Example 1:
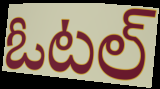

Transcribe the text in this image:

ఓటల్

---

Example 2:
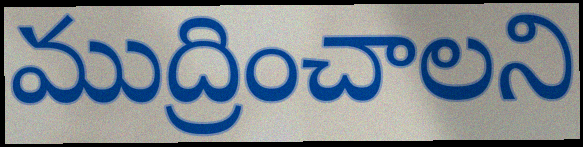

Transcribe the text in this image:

ముద్రించాలని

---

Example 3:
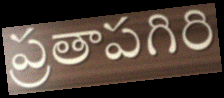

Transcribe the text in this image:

ప్రతాపగిరి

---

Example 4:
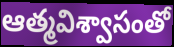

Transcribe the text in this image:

ఆత్మవిశ్వాసంతో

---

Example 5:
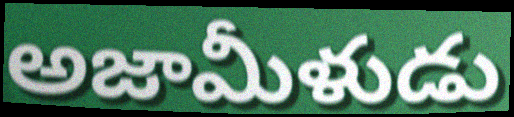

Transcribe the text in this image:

అజామీళుడు